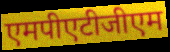
एमपीएटीजीएम